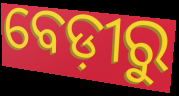
ବେଡ଼ୀରୁ